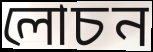
লোচন